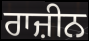
ਰਾਜ਼ੀਨ